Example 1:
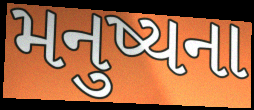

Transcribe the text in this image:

મનુષ્યના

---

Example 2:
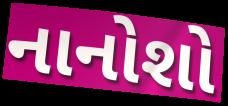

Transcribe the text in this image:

નાનોશો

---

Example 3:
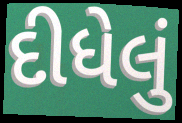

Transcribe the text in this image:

દીધેલું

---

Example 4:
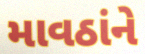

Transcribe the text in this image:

માવઠાંને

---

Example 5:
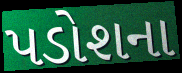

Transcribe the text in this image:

પડોશના